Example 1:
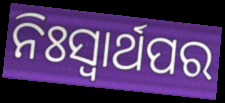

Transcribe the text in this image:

ନିଃସ୍ୱାର୍ଥପର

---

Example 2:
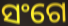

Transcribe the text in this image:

ସଂଗେ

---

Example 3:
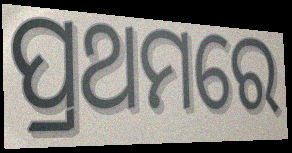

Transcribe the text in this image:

ପ୍ରଥମରେ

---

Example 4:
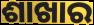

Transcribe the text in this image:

ଶାଖାର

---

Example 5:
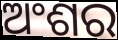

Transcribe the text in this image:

ଅଂଶର